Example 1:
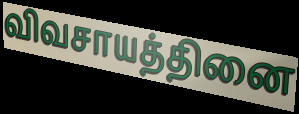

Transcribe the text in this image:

விவசாயத்தினை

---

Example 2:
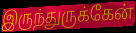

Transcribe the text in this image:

இருந்துருக்கேன்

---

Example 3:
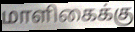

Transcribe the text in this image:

மாளிகைக்கு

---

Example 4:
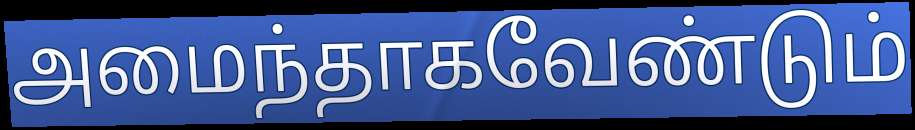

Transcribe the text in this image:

அமைந்தாகவேண்டும்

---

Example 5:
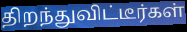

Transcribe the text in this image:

திறந்துவிட்டீர்கள்